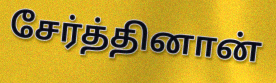
சேர்த்தினான்